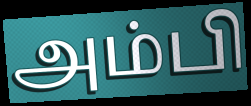
அம்பி